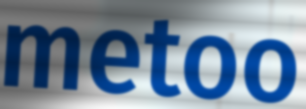
metoo